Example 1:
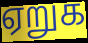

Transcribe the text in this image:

ஏறுக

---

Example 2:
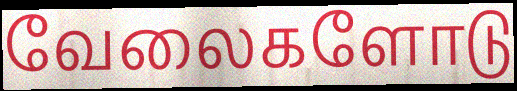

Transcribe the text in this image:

வேலைகளோடு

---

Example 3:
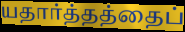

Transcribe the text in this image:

யதார்த்தத்தைப்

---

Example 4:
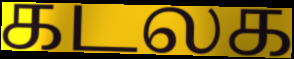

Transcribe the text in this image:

கடலக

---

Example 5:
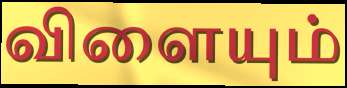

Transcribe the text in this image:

விளையும்